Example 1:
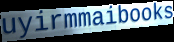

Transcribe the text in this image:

uyirmmaibooks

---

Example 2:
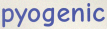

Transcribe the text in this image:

pyogenic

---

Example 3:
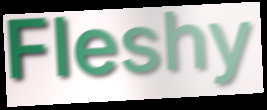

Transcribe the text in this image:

Fleshy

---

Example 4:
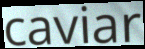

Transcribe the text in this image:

caviar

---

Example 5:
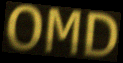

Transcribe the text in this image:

OMD